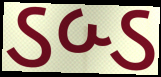
ડબ્ડ